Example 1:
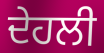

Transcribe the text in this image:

ਦੇਹਲੀ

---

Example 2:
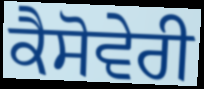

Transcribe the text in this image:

ਕੈਸੋਵੇਰੀ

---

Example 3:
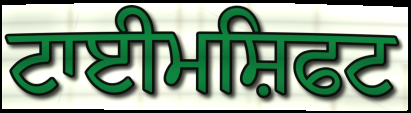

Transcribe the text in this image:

ਟਾਈਮਸ਼ਿਫਟ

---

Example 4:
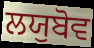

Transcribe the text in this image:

ਲਯੁਬੋਵ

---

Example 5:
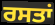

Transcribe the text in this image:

ਰਸਤਾਂ